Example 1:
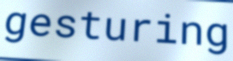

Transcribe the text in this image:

gesturing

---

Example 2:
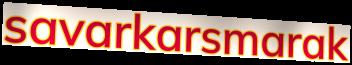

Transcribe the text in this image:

savarkarsmarak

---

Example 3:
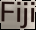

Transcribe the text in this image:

Fiji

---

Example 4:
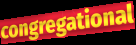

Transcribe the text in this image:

congregational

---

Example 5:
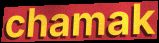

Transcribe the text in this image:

chamak